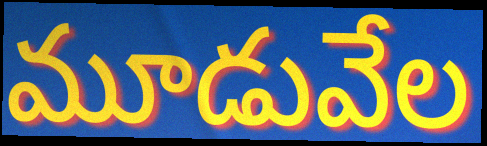
మూడువేల